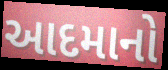
આદમાનો